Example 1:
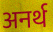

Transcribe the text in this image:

अनर्थ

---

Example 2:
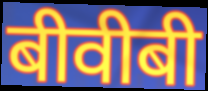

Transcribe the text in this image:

बीवीबी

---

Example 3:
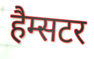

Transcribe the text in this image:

हैम्सटर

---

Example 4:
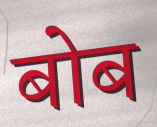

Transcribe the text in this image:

बोब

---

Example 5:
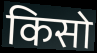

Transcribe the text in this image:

किसो